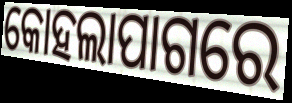
କୋହଲାପାଗରେ